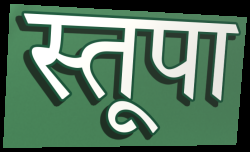
स्तूपा